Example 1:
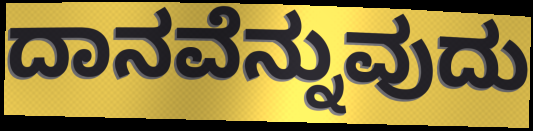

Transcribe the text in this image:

ದಾನವೆನ್ನುವುದು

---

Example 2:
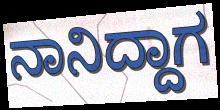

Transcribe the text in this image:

ನಾನಿದ್ದಾಗ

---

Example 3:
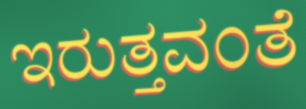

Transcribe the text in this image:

ಇರುತ್ತವಂತೆ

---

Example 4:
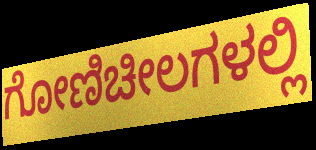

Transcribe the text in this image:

ಗೋಣಿಚೀಲಗಳಲ್ಲಿ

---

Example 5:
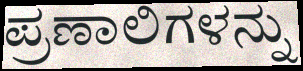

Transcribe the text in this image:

ಪ್ರಣಾಲಿಗಳನ್ನು